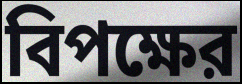
বিপক্ষের